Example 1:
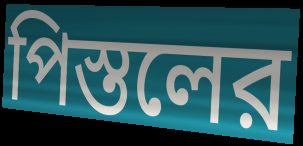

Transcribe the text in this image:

পিস্তলের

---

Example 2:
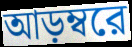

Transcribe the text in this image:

আড়ম্বরে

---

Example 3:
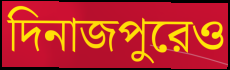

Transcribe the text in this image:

দিনাজপুরেও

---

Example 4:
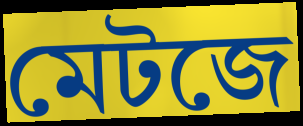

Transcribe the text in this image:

মেটজে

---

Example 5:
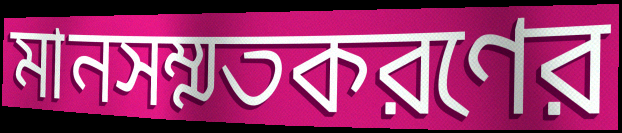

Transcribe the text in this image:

মানসম্মতকরণের